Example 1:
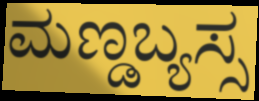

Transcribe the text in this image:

ಮಣ್ಡಬ್ಯಸ್ಸ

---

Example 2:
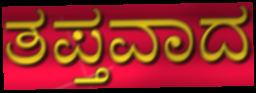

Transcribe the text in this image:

ತಪ್ತವಾದ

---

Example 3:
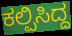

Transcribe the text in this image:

ಕಲ್ಪಿಸಿದ್ದ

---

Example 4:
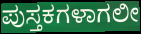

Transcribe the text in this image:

ಪುಸ್ತಕಗಳಾಗಲೀ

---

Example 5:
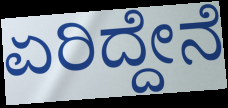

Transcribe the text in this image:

ಏರಿದ್ದೇನೆ